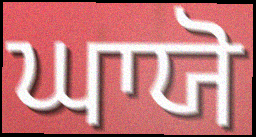
ਘਾਯੋ